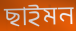
ছাইমন